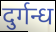
दुर्गन्‍ध